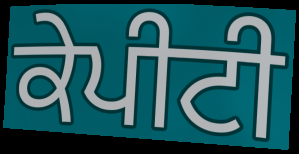
ਕੇਪੀਟੀ